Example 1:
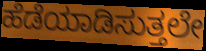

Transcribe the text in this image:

ಹೆಡೆಯಾಡಿಸುತ್ತಲೇ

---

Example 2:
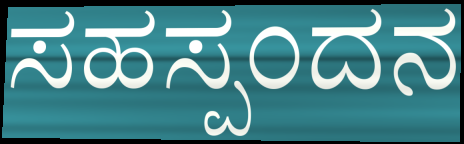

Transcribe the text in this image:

ಸಹಸ್ಪಂದನ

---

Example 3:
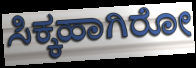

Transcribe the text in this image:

ಸಿಕ್ಕಹಾಗಿರೋ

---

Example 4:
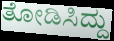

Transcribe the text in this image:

ತೋಡಿಸಿದ್ದು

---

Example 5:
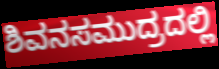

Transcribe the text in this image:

ಶಿವನಸಮುದ್ರದಲ್ಲಿ